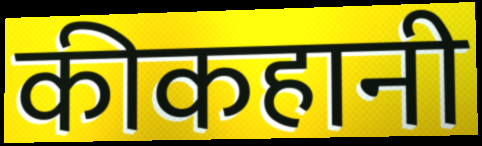
कीकहानी